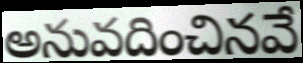
అనువదించినవే